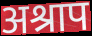
अश्राप